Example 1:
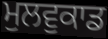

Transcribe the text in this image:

ਮੁਲਵੁਕਾਡ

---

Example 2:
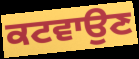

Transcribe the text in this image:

ਕਟਵਾਉਣ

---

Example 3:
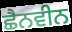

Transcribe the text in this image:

ਛੈਨਵੀਨ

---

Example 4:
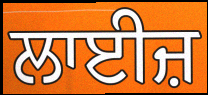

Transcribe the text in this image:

ਲਾਈਜ਼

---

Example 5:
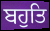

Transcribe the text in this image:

ਬਹੁਤਿ